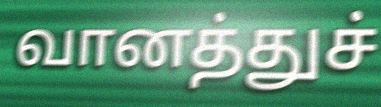
வானத்துச்